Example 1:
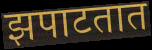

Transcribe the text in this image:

झपाटतात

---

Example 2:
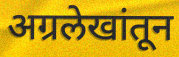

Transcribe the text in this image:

अग्रलेखांतून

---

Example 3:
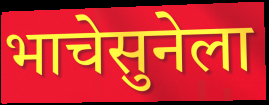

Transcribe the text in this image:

भाचेसुनेला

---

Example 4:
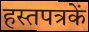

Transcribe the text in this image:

हस्तपत्रकें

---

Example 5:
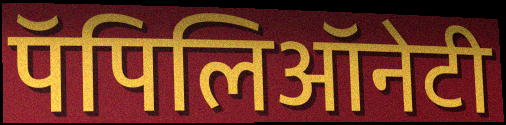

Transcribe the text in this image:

पॅपिलिऑनेटी